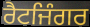
ਰੈਟਜਿੰਗਰ